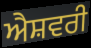
ਐਸ਼ਵਰੀ